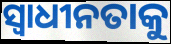
ସ୍ଵାଧୀନତାକୁ